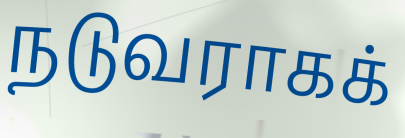
நடுவராகக்